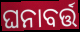
ଘନାବର୍ତ୍ତ